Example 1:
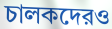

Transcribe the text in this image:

চালকদেরও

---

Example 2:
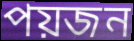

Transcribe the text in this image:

পয়জন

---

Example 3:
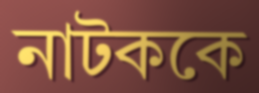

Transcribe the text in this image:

নাটককে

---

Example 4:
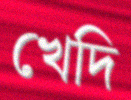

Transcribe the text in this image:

খেদি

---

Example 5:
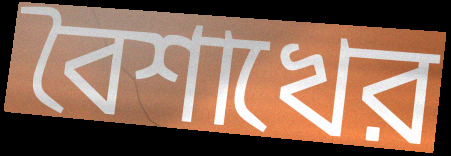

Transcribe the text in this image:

বৈশাখের